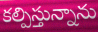
కల్పిస్తున్నాను